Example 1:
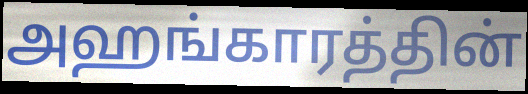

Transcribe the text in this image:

அஹங்காரத்தின்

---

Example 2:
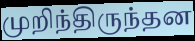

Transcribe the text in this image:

முறிந்திருந்தன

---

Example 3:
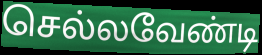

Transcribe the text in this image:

செல்லவேண்டி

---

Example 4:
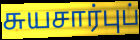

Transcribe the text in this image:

சுயசார்புப்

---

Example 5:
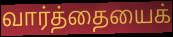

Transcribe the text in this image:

வார்த்தையைக்